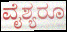
ವೈಶ್ಯರೂ